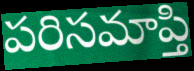
పరిసమాప్తి